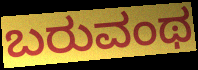
ಬರುವಂಥ